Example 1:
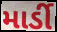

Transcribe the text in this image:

માર્ડી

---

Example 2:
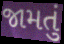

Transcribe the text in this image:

જામતું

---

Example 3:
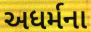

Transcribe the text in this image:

અધર્મના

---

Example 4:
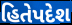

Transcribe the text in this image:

હિતેપદેશ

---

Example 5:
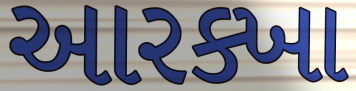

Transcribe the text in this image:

આરક્ખા